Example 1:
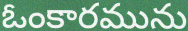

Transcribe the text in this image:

ఓంకారమును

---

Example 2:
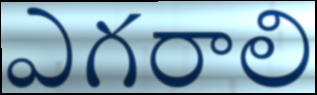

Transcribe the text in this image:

ఎగరాలి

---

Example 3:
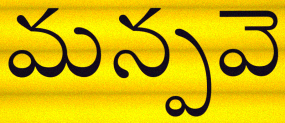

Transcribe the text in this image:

మన్పవె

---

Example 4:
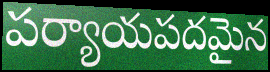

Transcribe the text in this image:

పర్యాయపదమైన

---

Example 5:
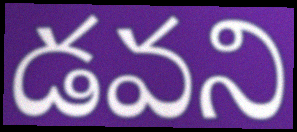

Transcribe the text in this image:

డవని